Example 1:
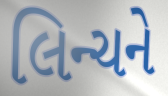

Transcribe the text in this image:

લિન્ચને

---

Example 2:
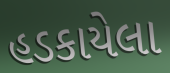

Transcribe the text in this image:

હડકાયેલા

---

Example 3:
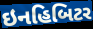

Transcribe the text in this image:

ઇનહિબિટર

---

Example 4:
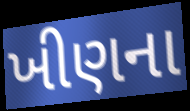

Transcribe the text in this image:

ખીણના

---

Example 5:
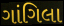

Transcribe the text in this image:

ગાંગિલા